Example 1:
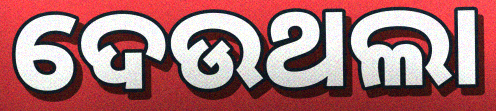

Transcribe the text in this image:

ଦେଉଥଲା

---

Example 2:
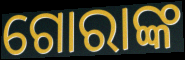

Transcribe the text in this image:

ଗୋରାଙ୍କ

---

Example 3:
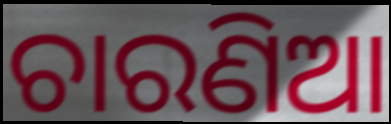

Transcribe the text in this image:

ଚାରଣିଆ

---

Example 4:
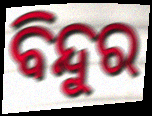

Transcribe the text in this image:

ବିନ୍ଦୁର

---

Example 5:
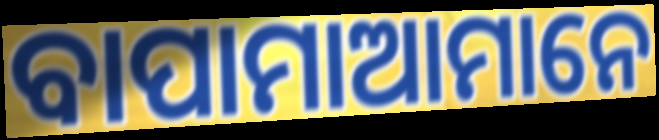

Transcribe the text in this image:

ବାପାମାଆମାନେ